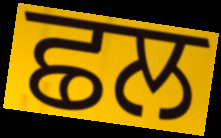
ਛਲ